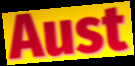
Aust